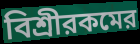
বিশ্রীরকমের